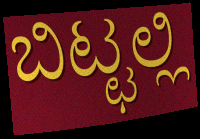
ಬಿಟ್ಟಲ್ಲಿ